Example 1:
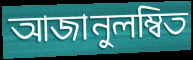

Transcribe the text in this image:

আজানুলম্বিত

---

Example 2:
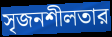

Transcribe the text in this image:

সৃজনশীলতার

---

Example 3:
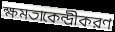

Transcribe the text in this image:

ক্ষমতাকেন্দ্রীকরণ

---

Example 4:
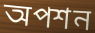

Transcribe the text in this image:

অপশন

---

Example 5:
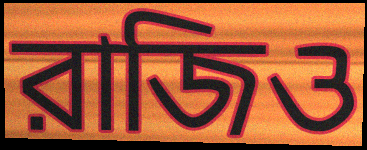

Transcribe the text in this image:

রাজিও